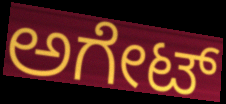
ಅಗೇಟ್